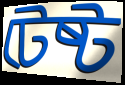
টেষ্ট